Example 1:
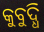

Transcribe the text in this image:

କୁବୁଦ୍ଧି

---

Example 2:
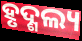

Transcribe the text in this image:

ହୃଦ୍ଶଲ୍ୟ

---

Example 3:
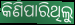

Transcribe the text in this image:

କିଣିପାରିଥିଲୁ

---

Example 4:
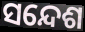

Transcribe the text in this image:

ସନ୍ଦେଶ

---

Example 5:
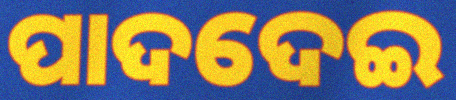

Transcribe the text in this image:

ପାଦଦେଇ